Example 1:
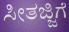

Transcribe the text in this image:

ಸೀತಜ್ಜಿಗೆ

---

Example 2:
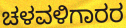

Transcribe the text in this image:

ಚಳವಳಿಗಾರರ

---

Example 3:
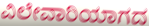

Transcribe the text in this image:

ವಿಲೇವಾರಿಯಾಗದ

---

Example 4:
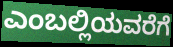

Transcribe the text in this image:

ಎಂಬಲ್ಲಿಯವರೆಗೆ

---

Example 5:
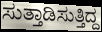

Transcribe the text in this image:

ಸುತ್ತಾಡಿಸುತ್ತಿದ್ದ